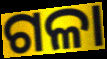
ଗଳା